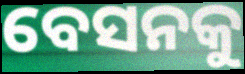
ବେସନକୁ